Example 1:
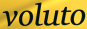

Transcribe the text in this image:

voluto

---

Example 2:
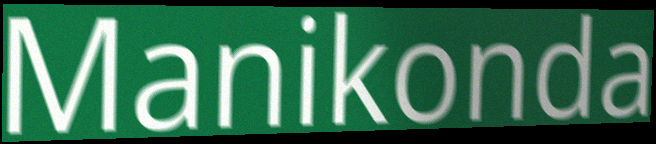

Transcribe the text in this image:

Manikonda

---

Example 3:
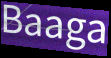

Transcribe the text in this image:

Baaga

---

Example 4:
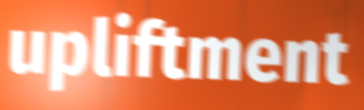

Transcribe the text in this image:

upliftment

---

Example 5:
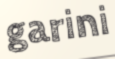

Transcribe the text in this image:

garini